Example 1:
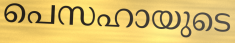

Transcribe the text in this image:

പെസഹായുടെ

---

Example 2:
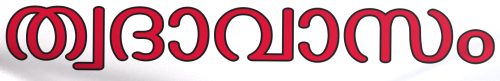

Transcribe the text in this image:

ത്വദാവാസം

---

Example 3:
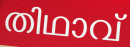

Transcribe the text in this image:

തിഥാവ്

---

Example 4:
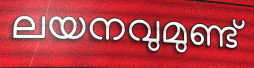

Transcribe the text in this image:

ലയനവുമുണ്ട്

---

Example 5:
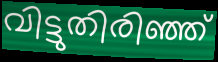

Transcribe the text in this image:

വിട്ടുതിരിഞ്ഞ്